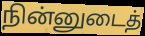
நின்னுடைத்